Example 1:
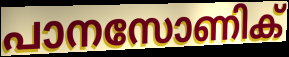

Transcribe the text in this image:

പാനസോണിക്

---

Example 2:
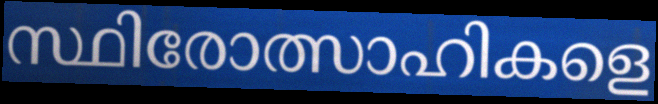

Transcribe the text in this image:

സ്ഥിരോത്സാഹികളെ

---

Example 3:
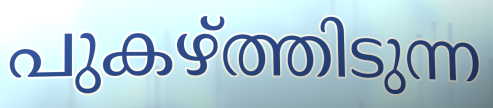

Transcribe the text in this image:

പുകഴ്ത്തിടുന്ന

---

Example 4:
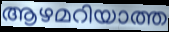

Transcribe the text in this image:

ആഴമറിയാത്ത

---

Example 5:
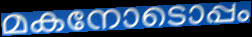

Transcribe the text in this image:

മകനോടൊപ്പം